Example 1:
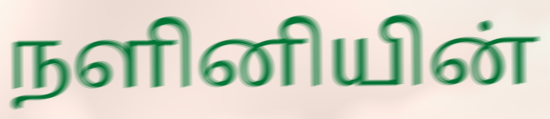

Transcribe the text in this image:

நளினியின்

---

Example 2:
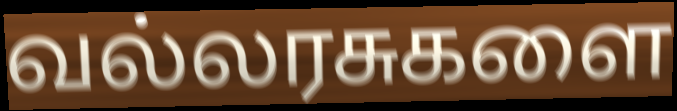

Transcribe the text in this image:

வல்லரசுகளை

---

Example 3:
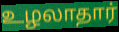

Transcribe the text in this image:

உழலாதார்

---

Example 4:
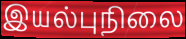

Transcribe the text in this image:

இயல்புநிலை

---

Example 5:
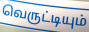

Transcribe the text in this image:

வெருட்டியும்